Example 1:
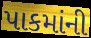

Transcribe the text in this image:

પાકમાંની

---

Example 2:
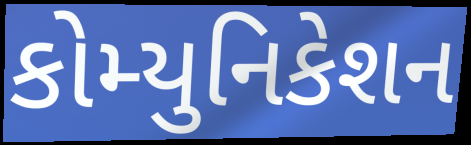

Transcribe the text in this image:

કોમ્યુનિકેશન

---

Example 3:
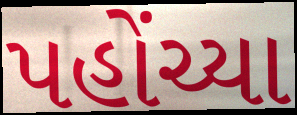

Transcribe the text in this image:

પહોંચ્યા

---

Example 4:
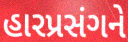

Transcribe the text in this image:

હારપ્રસંગને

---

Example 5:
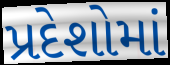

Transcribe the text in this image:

પ્રદેશોમાં